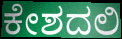
ಕೇಶದಲಿ